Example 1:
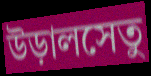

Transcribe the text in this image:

উড়ালসেতু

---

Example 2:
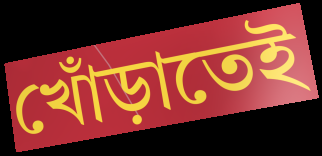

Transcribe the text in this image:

খোঁড়াতেই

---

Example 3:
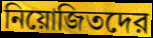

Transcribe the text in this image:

নিয়োজিতদের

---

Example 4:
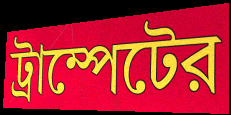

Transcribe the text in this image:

ট্রাম্পেটের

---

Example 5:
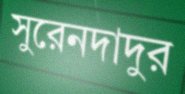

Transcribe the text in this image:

সুরেনদাদুর